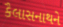
કૈલાસનાથને